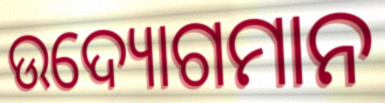
ଉଦ୍ୟୋଗମାନ